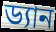
ড্যান